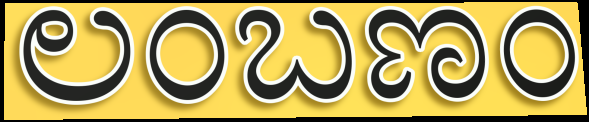
ಲಂಬಣಂ